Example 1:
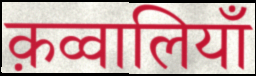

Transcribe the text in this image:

क़व्वालियाँ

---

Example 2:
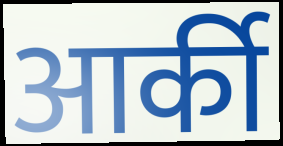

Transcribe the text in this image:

आर्की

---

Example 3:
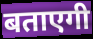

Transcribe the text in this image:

बताएगी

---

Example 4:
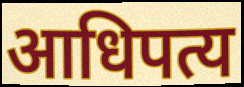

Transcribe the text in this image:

आधिपत्य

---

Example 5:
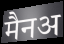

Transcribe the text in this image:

मैनअ